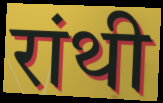
रांथी